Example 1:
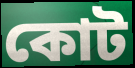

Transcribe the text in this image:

কোট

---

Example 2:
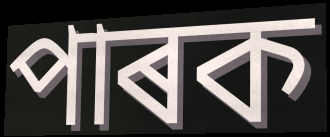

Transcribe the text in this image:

পাৰক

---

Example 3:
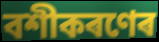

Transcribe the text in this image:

বশীকৰণেৰ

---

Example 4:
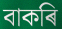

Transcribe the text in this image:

বাকৰি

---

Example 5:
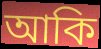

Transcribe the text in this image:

আকি